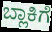
ಬ್ಲಾಕಿಗೆ